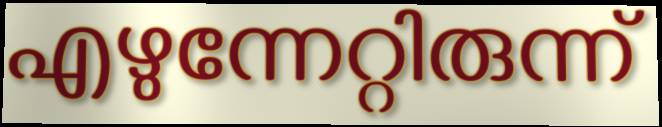
എഴുന്നേറ്റിരുന്ന്